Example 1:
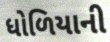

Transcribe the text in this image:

ધોળિયાની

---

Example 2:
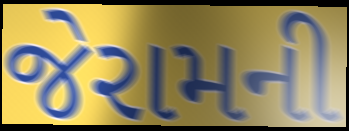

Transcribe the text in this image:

જેરામની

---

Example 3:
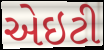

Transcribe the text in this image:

એઇટી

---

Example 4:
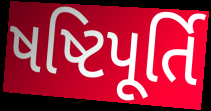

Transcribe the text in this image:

ષષ્ટિપૂર્તિ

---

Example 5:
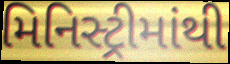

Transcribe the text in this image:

મિનિસ્ટ્રીમાંથી